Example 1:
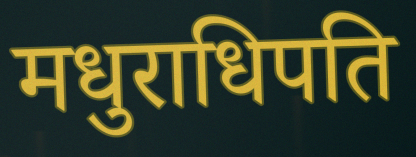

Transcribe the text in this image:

मधुराधिपति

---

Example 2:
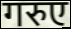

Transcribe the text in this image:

गरुए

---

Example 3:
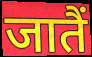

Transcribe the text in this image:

जातैं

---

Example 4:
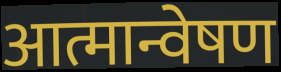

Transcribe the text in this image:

आत्मान्वेषण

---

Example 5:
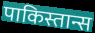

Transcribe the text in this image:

पाकिस्तान्स